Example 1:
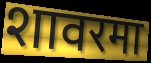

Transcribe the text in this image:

शावरमा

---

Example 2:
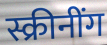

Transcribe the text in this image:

स्क्रीनींग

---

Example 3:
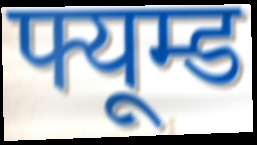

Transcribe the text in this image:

फ्यूम्ड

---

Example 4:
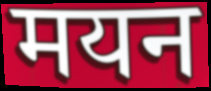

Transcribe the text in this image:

मयन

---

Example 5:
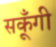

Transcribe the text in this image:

सकूँगी